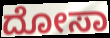
ದೋಸಾ